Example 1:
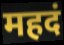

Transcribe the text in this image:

महदं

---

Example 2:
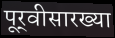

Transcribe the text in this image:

पूर्वीसारख्या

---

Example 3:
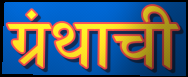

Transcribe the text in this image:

ग्रंथाची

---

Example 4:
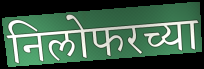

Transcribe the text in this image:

निलोफरच्या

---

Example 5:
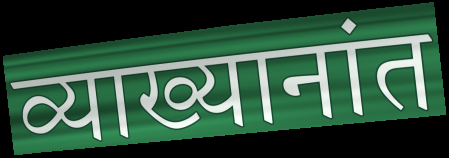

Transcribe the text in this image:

व्याख्यानांत